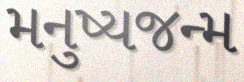
મનુષ્યજન્મ